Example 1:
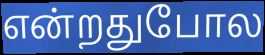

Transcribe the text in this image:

என்றதுபோல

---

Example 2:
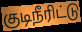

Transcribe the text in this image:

குடிநீரிட்டு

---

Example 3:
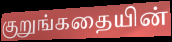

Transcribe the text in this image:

குறுங்கதையின்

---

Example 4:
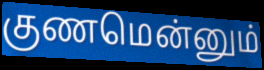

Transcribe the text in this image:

குணமென்னும்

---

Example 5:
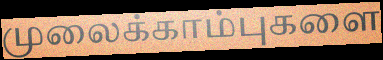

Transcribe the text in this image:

முலைக்காம்புகளை